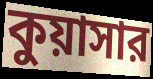
কুয়াসার